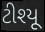
ટીશ્યૂ